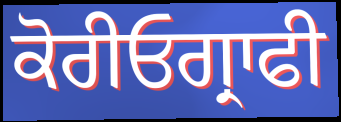
ਕੋਰੀਓਗ੍ਰਾਫੀ